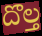
దొల్త